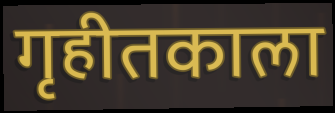
गृहीतकाला